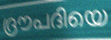
ദ്രൗപദിയെ